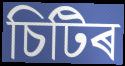
চিটিৰ